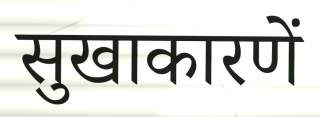
सुखाकारणें